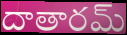
దాతారమ్